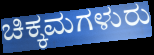
ಚಿಕ್ಕಮಗಳುರು